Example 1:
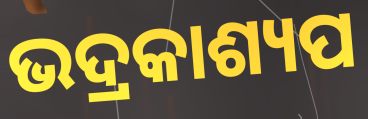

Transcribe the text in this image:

ଭଦ୍ରକାଶ୍ୟପ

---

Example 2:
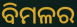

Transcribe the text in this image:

ବିମଳର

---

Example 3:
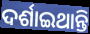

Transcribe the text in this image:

ଦର୍ଶାଇଥାନ୍ତି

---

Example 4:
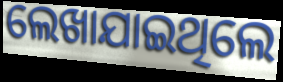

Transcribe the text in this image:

ଲେଖାଯାଇଥିଲେ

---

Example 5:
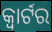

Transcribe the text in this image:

କ୍ଵାର୍ଟର